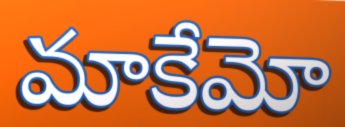
మాకేమో